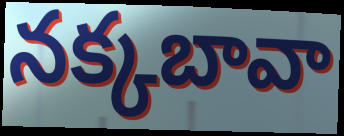
నక్కబావా